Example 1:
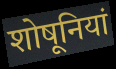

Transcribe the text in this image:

शोषूनियां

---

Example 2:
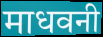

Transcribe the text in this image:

माधवनी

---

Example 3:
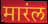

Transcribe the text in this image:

मारंल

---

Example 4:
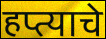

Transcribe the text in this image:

हप्त्याचे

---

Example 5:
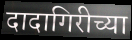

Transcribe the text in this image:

दादागिरीच्या